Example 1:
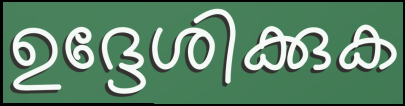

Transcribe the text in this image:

ഉദ്ദേശിക്കുക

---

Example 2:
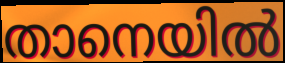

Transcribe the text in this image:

താനെയിൽ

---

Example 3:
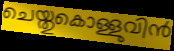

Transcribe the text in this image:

ചെയ്തുകൊള്ളുവിൻ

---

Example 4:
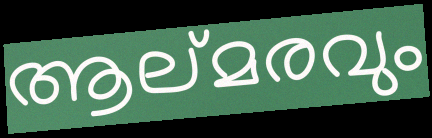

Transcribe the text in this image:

ആല്മരവും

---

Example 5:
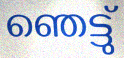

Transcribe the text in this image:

ഞെട്ടു്